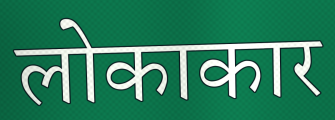
लोकाकार